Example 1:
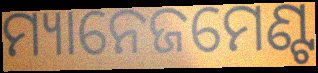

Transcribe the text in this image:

ମ୍ୟାନେଜମେଣ୍ଟ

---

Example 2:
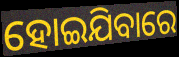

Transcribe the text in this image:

ହୋଇଯିବାରେ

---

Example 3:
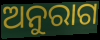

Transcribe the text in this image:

ଅନୁରାଗ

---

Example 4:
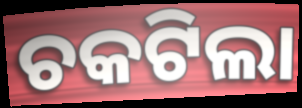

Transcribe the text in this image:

ଚକଟିଲା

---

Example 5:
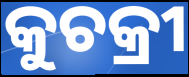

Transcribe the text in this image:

କୁଚକ୍ରୀ